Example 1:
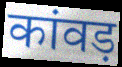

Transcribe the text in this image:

कांवड़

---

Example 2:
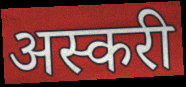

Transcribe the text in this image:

अस्करी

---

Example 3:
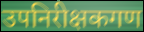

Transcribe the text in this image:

उपनिरीक्षकगण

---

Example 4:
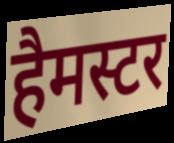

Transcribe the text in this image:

हैमस्टर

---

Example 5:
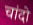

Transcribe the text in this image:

चांदो